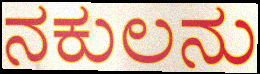
ನಕುಲನು